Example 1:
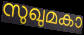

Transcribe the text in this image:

സുഖുമകാ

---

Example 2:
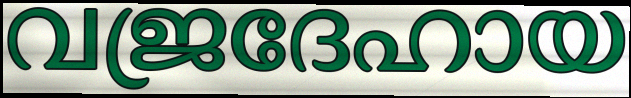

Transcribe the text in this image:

വജ്രദേഹായ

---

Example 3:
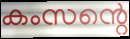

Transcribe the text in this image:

കംസന്റെ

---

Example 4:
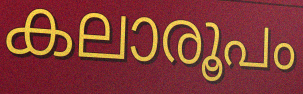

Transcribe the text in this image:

കലാരൂപം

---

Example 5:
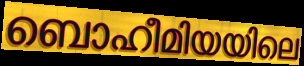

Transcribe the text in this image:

ബൊഹീമിയയിലെ